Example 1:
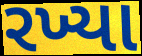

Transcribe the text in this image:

રખ્યા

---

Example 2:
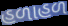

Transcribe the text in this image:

હળાહળ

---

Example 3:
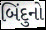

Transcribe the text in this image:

બિંદુનો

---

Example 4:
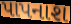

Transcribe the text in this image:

પાપનાશ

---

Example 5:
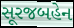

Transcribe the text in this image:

સૂરજબહેન